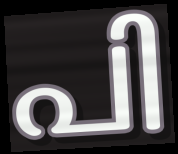
പി